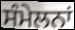
ਸੰਮੇਲਨਾਂ